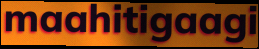
maahitigaagi